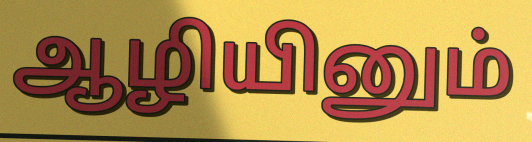
ஆழியினும்